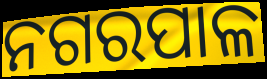
ନଗରପାଳ